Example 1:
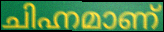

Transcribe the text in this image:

ചിഹ്നമാണ്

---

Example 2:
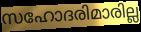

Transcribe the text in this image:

സഹോദരിമാരില്ല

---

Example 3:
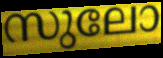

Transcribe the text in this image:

സുലോ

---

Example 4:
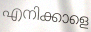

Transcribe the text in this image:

എനിക്കാളെ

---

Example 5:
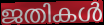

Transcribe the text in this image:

ജതികൾ